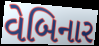
વેબિનાર